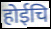
होईचि